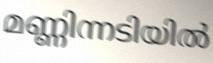
മണ്ണിന്നടിയിൽ